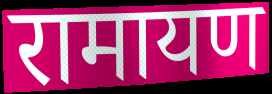
रामायण